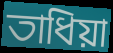
তাধিয়া